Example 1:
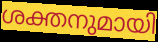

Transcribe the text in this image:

ശക്തനുമായി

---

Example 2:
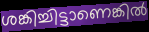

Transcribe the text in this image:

ശങ്കിച്ചിട്ടാണെങ്കിൽ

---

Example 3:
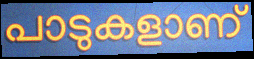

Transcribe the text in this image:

പാടുകളാണ്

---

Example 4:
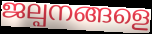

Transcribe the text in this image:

ജല്പനങ്ങളെ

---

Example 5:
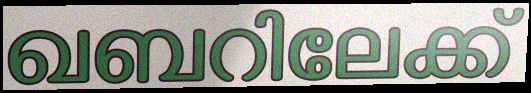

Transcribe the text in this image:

ഖബറിലേക്ക്